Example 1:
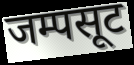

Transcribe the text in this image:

जम्पसूट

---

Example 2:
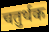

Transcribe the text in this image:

चतुर्थक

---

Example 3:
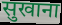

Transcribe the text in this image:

सुखाना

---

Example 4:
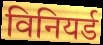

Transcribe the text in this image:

विनियर्ड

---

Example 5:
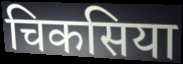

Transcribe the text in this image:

चिकसिया